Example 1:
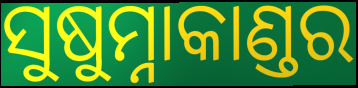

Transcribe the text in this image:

ସୁଷୁମ୍ନାକାଣ୍ଡର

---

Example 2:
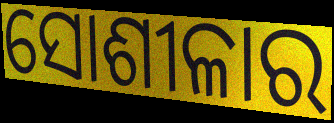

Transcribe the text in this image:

ସୋଶୀଳାର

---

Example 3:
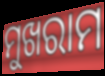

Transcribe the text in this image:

ମୁଖରାମ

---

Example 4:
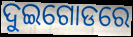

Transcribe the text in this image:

ଦୁଇଗୋଡରେ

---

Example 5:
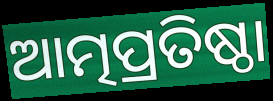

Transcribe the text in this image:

ଆତ୍ମପ୍ରତିଷ୍ଠା